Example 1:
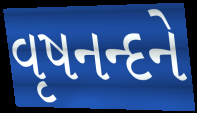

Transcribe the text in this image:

વૃષનન્દને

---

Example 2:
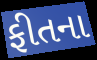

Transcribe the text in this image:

ફીતના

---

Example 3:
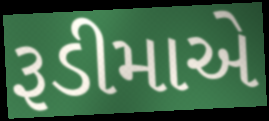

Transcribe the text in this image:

રૂડીમાએ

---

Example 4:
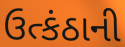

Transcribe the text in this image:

ઉત્કંઠાની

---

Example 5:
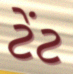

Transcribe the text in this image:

ટેંટ